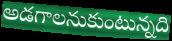
అడగాలనుకుంటున్నది